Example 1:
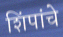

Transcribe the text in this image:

शिंपांचे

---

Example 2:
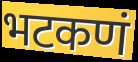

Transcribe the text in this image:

भटकणं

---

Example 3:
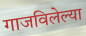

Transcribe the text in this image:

गाजविलेल्या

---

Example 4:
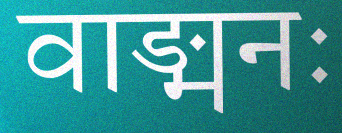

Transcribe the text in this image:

वाङ्मनः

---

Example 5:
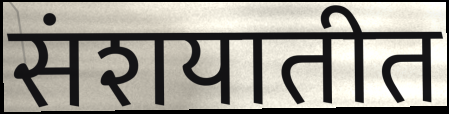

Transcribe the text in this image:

संशयातीत